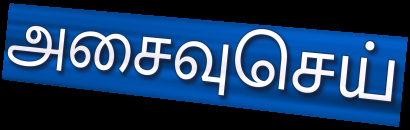
அசைவுசெய்